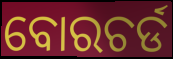
ବୋରଚର୍ଡ